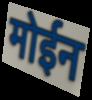
मोईन